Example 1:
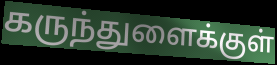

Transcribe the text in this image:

கருந்துளைக்குள்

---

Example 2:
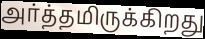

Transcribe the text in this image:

அர்த்தமிருக்கிறது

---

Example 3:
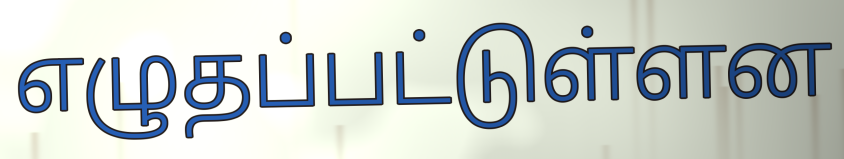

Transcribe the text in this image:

எழுதப்பட்டுள்ளன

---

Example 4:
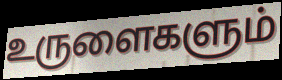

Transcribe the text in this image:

உருளைகளும்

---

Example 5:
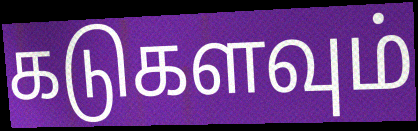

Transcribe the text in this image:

கடுகளவும்